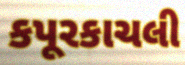
કપૂરકાચલી